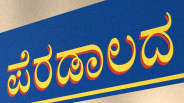
ಪೆರಡಾಲದ